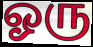
ஓரு